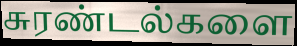
சுரண்டல்களை